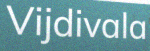
Vijdivala